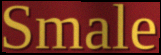
Smale